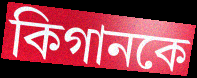
কিগানকে